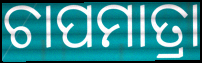
ଚାପମାତ୍ରା